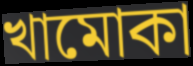
খামোকা